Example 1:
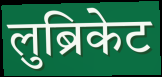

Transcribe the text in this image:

लुब्रिकेट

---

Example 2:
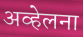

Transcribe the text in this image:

अव्हेलना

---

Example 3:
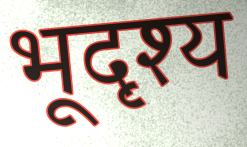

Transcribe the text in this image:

भूदृश्य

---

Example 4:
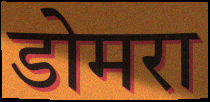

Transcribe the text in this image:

डोमरा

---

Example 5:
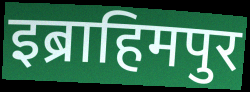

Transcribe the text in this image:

इब्राहिमपुर